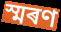
স্মৰণ